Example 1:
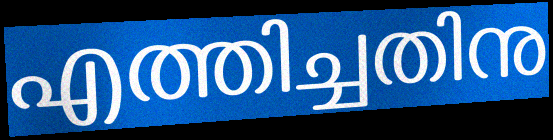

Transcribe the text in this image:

എത്തിച്ചതിനു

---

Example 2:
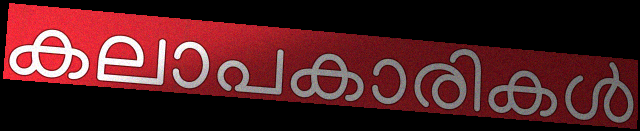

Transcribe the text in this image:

കലാപകാരികൾ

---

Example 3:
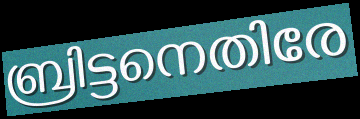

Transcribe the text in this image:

ബ്രിട്ടനെതിരേ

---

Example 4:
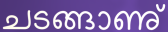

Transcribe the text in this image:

ചടങ്ങാണു്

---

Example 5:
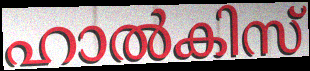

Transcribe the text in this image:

ഹാൽകിസ്